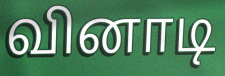
வினாடி